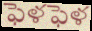
ఫెళఫెళ